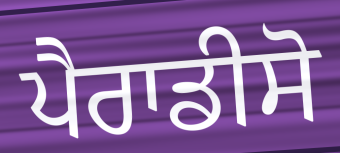
ਪੈਰਾਡੀਸੋ